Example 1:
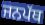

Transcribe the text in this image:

ਜਨਪੱਥ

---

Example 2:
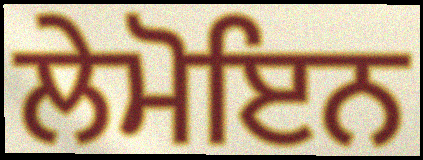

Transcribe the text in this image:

ਲੇਮੋਇਨ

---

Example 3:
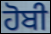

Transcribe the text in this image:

ਹੋਬੀ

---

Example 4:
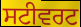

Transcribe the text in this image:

ਸਟੀਵਰਟ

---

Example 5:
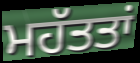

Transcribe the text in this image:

ਮਹੱਤਤਾਂ